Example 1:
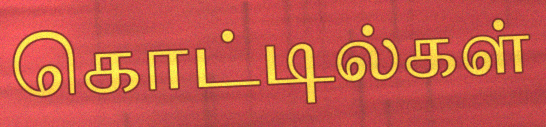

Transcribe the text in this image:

கொட்டில்கள்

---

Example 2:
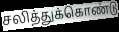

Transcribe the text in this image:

சலித்துக்கொண்டு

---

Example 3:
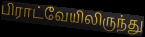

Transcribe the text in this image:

பிராட்வேயிலிருந்து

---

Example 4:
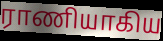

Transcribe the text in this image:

ராணியாகிய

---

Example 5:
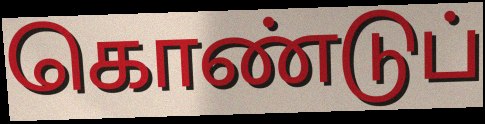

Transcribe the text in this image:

கொண்டுப்